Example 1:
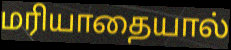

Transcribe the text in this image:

மரியாதையால்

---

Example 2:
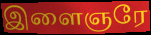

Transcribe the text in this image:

இளைஞரே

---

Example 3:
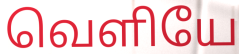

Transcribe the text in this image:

வெளியே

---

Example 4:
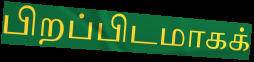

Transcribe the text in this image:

பிறப்பிடமாகக்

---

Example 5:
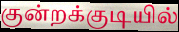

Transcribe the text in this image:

குன்றக்குடியில்